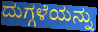
ದುಗ್ಗಳೆಯನ್ನು